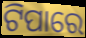
ଟିପାରେ